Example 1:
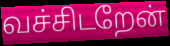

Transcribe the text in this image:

வச்சிடறேன்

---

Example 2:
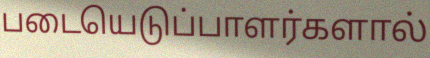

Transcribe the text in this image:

படையெடுப்பாளர்களால்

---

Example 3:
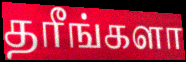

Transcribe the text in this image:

தரீங்களா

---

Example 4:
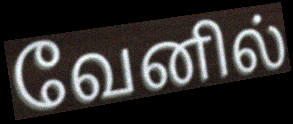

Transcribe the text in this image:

வேனில்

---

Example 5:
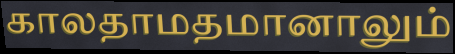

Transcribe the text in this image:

காலதாமதமானாலும்